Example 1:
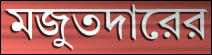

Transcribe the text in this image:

মজুতদারের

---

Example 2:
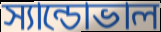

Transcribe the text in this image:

স্যান্ডোভাল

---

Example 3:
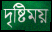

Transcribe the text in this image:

দৃষ্টিময়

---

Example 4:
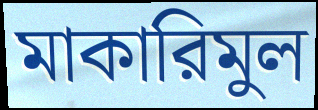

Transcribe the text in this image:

মাকারিমুল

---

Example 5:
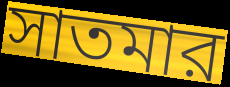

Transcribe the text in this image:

সাতমার